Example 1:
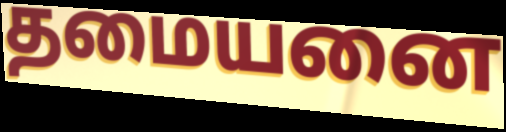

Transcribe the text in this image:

தமையனை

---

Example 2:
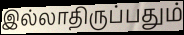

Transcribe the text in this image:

இல்லாதிருப்பதும்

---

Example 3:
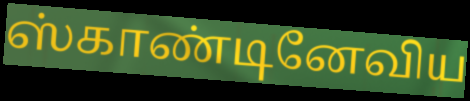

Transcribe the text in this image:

ஸ்காண்டினேவிய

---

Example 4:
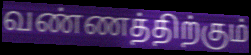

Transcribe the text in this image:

வண்ணத்திற்கும்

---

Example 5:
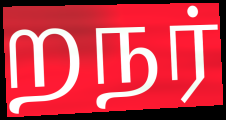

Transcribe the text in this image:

றநர்